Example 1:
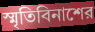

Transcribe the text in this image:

স্মৃতিবিনাশের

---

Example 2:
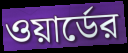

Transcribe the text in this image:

ওয়ার্ডের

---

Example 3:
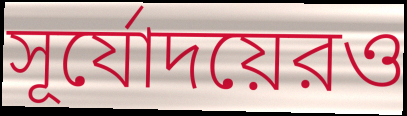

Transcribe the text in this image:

সূর্যোদয়েরও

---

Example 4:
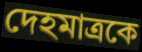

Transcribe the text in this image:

দেহমাত্রকে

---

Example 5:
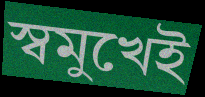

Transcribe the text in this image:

স্বমুখেই